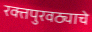
रक्तपुरवठ्याचे